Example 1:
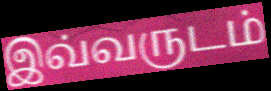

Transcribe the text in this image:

இவ்வருடம்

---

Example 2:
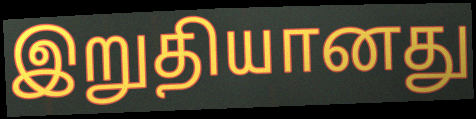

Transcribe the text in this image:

இறுதியானது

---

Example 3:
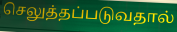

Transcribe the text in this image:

செலுத்தப்படுவதால்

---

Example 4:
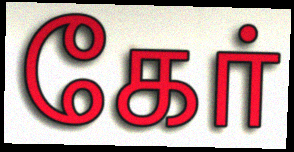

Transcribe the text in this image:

கேர்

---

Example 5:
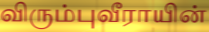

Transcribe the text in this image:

விரும்புவீராயின்